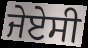
ਜੇਏਸੀ